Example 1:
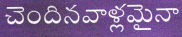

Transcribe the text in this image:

చెందినవాళ్లమైనా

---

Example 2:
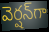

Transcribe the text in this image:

వెర్షన్‌గా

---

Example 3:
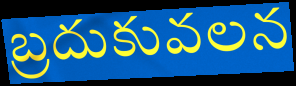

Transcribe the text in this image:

బ్రదుకువలన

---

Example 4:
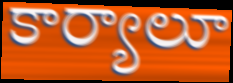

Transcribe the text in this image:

కార్యాలూ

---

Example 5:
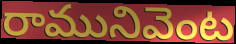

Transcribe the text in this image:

రామునివెంట